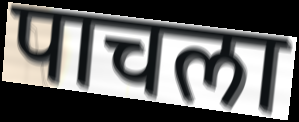
पाचला